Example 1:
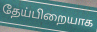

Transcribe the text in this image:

தேய்பிறையாக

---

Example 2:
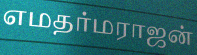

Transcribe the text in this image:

எமதர்மராஜன்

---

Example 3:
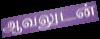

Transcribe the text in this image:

ஆவலுடன்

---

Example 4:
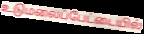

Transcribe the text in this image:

உடுமலைப்பேட்டையில்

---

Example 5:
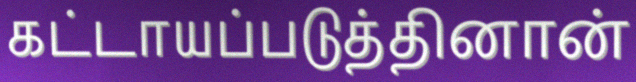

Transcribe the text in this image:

கட்டாயப்படுத்தினான்